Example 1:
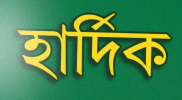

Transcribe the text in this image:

হার্দিক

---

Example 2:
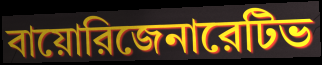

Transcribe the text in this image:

বায়োরিজেনারেটিভ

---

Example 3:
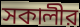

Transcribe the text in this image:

সকালীর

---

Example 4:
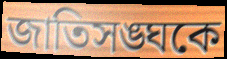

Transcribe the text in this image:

জাতিসঙ্ঘকে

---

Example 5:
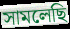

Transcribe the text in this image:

সামলেছি